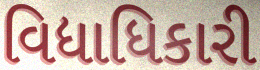
વિદ્યાધિકારી